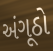
અંગૂઠો